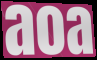
aoa